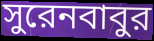
সুরেনবাবুর